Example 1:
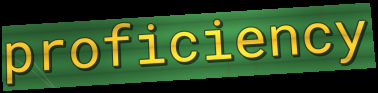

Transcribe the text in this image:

proficiency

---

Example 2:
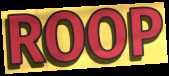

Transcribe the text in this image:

ROOP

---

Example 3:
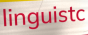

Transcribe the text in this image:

linguistc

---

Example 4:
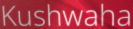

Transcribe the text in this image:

Kushwaha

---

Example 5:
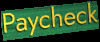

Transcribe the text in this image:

Paycheck